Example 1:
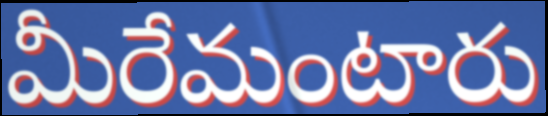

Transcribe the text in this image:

మీరేమంటారు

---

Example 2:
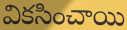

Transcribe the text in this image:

వికసించాయి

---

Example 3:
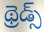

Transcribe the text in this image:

థ్రెడ్స్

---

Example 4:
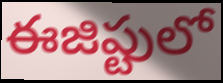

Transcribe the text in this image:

ఈజిప్టులో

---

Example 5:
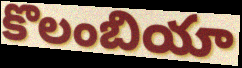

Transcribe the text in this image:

కొలంబియా